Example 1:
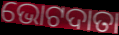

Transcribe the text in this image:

ଭୋଟଦାତା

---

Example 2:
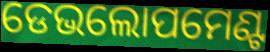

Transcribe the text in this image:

ଡେଭଲୋପମେଣ୍ଟ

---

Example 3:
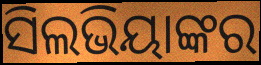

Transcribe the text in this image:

ସିଲଭିୟାଙ୍କର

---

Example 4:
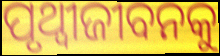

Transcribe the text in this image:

ପୃଥ୍ୱୀଜୀବନକୁ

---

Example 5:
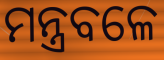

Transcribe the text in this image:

ମନ୍ତ୍ରବଳେ